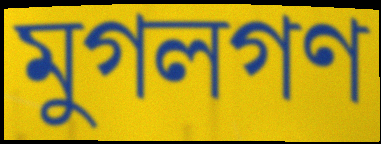
মুগলগণ